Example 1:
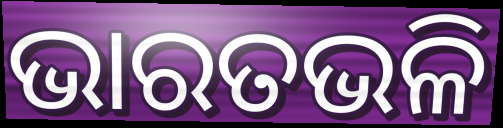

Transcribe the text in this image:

ଭାରତଭଳି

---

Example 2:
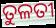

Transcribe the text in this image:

ତୁଳତୀ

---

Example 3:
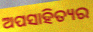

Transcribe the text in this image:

ଅପସାହିତ୍ୟର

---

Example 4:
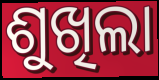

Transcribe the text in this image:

ଶୁଖିଲା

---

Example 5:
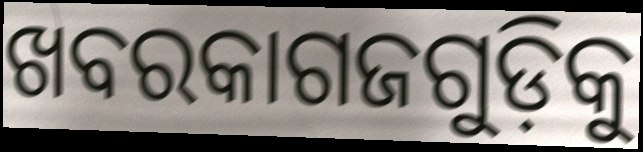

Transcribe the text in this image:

ଖବରକାଗଜଗୁଡ଼ିକୁ